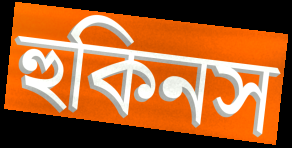
হুকিনস